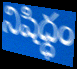
నిషిధ్ధం